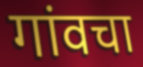
गांवचा